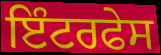
ਇੰਟਰਫੇਸ